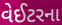
વેઈટરના